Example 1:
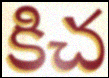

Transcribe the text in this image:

కిచ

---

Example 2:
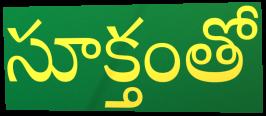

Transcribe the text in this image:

సూక్తంతో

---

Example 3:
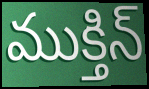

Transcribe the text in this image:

ముక్తిన్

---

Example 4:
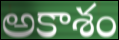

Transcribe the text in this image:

అకాశం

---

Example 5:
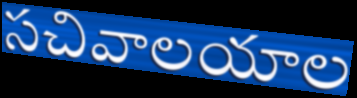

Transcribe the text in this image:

సచివాలయాల